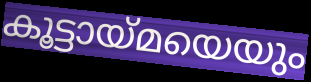
കൂട്ടായ്മയെയും